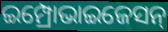
ଇମ୍ପ୍ରୋଭାଇଜେସନ୍